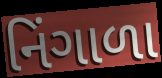
નિંગાળા